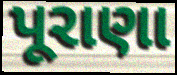
પૂરાણા